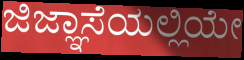
ಜಿಜ್ಞಾಸೆಯಲ್ಲಿಯೇ